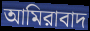
আমিরাবাদ